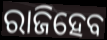
ରାଜିହେବ